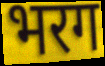
भरग